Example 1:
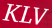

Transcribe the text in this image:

KLV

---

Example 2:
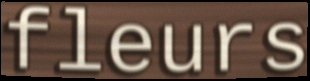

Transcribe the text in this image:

fleurs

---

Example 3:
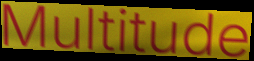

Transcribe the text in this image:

Multitude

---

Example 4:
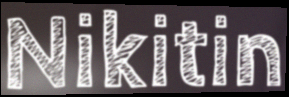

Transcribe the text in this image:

Nikitin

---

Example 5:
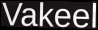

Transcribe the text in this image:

Vakeel